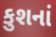
કુશનાં